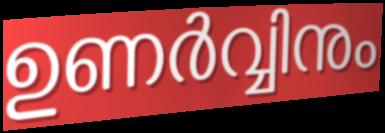
ഉണർവ്വിനും